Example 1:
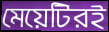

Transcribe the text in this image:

মেয়েটিরই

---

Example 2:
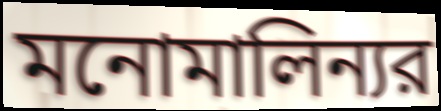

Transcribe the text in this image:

মনোমালিন্যর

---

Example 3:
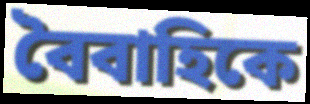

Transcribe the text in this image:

বৈবাহিকে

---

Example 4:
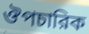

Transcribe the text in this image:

ঔপচারিক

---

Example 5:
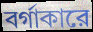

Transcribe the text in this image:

বর্গাকারে